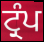
ਟ੍ਰੰਪ